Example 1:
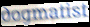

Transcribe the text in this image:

dogmatist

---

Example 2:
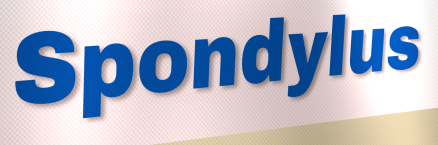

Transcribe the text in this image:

Spondylus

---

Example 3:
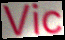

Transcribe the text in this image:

Vic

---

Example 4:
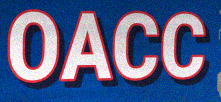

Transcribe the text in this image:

OACC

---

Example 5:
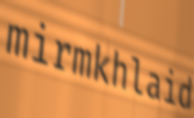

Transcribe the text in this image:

mirmkhlaid